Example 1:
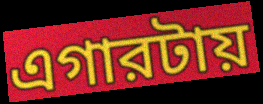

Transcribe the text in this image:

এগারটায়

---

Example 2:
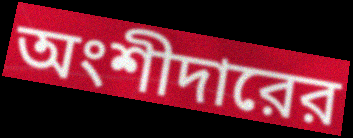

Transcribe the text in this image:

অংশীদারের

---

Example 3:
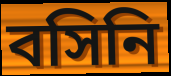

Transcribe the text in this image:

বসিনি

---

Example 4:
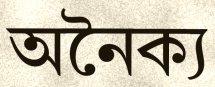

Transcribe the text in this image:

অনৈক্য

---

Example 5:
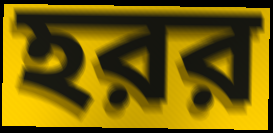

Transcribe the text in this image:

হরর